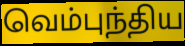
வெம்புந்திய